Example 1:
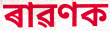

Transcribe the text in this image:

ৰাৱণক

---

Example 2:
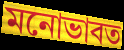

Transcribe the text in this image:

মনোভাবত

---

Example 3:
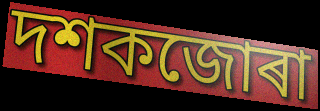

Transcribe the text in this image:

দশকজোৰা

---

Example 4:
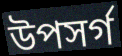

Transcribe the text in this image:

উপসৰ্গ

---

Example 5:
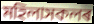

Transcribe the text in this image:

মহিলাসকলৰ